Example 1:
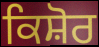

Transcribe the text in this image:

ਕਿਸ਼ੋਰ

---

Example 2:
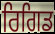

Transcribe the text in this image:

ਰਿਗਿਡ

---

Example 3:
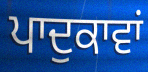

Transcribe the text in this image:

ਪਾਦੁਕਾਵਾਂ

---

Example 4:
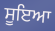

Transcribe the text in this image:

ਸੂਇਆ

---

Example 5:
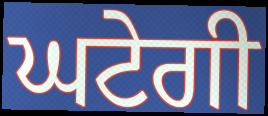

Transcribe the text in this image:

ਘਟੇਗੀ